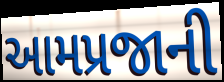
આમપ્રજાની